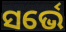
ସର୍ଭେ